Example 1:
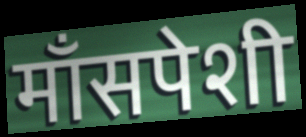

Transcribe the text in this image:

माँसपेशी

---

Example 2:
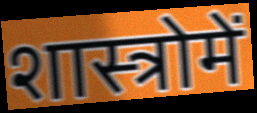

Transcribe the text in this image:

शास्त्रोमें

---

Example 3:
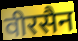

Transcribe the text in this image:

वीरसैन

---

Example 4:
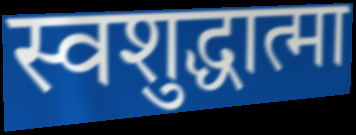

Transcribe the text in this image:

स्वशुद्धात्मा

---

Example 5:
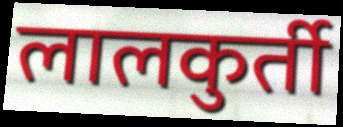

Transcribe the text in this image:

लालकुर्ती